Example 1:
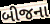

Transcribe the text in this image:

બીજના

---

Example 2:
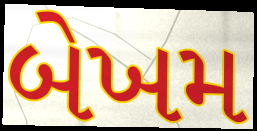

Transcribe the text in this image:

બેખમ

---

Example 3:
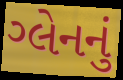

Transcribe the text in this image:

ગ્લેનનું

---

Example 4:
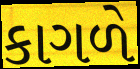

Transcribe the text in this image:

કાગળે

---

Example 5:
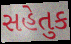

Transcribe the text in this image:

સહેતુક